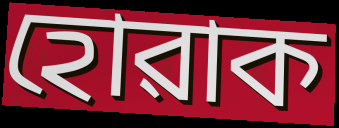
হোৱাক